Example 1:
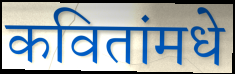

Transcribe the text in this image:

कवितांमधे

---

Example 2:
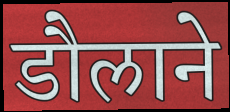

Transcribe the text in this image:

डौलाने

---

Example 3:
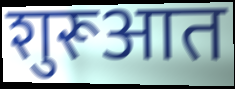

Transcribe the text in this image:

शुरूआत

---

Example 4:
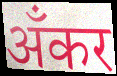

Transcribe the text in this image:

अँकर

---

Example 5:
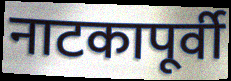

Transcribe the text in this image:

नाटकापूर्वी